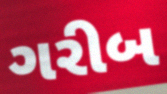
ગરીબ